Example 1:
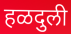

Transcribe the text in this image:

हळदुली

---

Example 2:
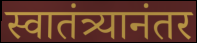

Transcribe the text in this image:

स्वातंत्र्यानंतर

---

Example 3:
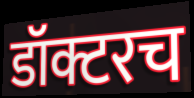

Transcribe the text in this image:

डॉक्टरच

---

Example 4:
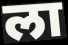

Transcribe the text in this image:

ला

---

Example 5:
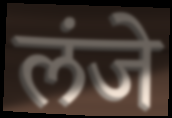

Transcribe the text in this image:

लंजे